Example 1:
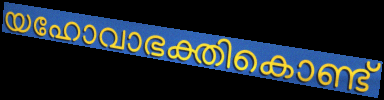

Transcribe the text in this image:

യഹോവാഭക്തികൊണ്ട്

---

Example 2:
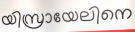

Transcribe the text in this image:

യിസ്രായേലിനെ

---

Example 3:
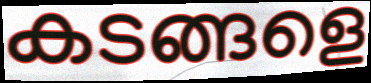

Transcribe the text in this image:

കടങ്ങളെ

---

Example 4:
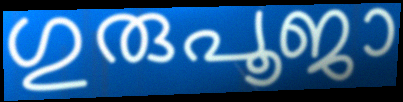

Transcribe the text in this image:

ഗുരുപൂജാ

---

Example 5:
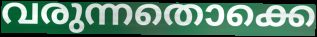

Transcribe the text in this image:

വരുന്നതൊക്കെ